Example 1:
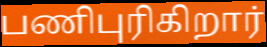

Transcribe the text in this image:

பணிபுரிகிறார்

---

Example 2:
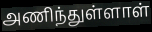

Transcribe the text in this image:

அணிந்துள்ளாள்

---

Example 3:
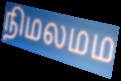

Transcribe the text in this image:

நிமலமம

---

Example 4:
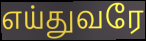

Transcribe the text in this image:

எய்துவரே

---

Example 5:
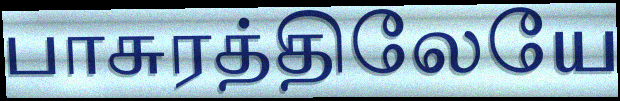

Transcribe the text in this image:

பாசுரத்திலேயே